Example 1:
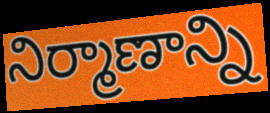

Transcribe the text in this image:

నిర్మాణాన్ని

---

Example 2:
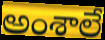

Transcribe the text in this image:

అంశాలే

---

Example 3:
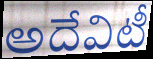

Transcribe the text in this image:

అదేవిటీ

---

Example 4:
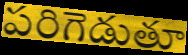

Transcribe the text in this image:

పరిగెడుతూ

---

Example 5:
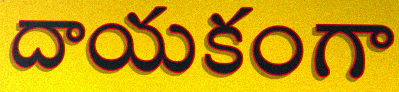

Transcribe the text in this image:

దాయకంగా